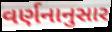
વર્ણનાનુસાર